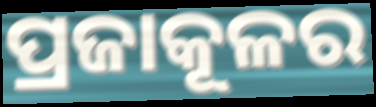
ପ୍ରଜାକୂଳର